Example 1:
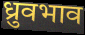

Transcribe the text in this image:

ध्रुवभाव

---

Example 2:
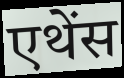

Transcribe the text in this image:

एथेंस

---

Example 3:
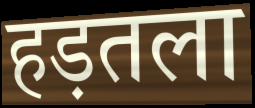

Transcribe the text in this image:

हड़तला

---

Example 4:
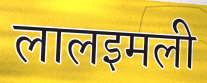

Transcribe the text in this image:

लालइमली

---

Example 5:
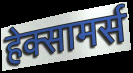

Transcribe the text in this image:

हेक्सामर्स